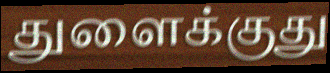
துளைக்குது